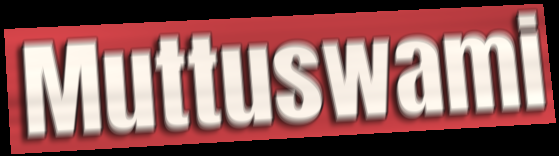
Muttuswami